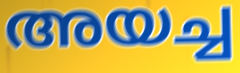
അയച്ച